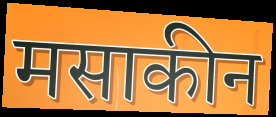
मसाकीन